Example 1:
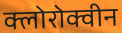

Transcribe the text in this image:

क्लोरोक्वीन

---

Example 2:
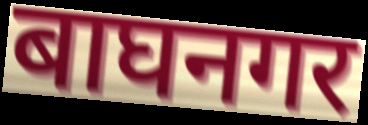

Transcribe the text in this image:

बाघनगर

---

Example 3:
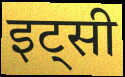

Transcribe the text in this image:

इट्सी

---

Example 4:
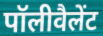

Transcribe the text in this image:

पॉलीवैलेंट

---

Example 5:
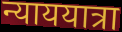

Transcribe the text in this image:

न्याययात्रा